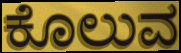
ಕೊಲುವ